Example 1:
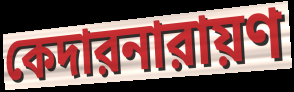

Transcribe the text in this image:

কেদারনারায়ণ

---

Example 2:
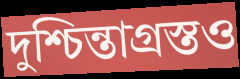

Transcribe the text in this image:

দুশ্চিন্তাগ্রস্তও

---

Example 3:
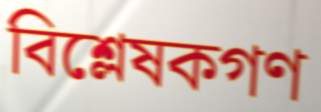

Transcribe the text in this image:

বিশ্লেষকগণ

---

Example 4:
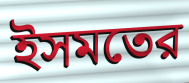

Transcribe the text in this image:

ইসমতের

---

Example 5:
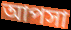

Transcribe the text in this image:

আপসা